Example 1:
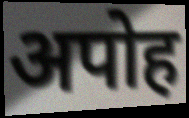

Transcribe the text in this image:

अपोह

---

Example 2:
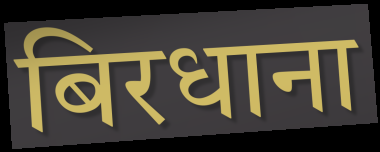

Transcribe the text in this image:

बिरधाना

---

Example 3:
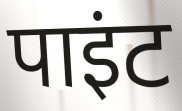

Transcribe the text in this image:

पाइंट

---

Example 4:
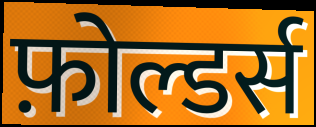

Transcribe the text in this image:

फ़ोल्डर्स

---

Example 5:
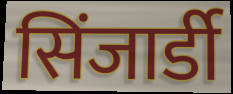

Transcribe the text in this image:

सिंजार्डी